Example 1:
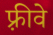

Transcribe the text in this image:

फ़्रीवे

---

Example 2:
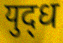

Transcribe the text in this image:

युद्ध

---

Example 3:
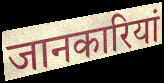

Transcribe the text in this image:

जानकारियां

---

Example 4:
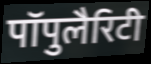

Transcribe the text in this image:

पॉपुलैरिटी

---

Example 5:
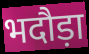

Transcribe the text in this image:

भदौड़ा